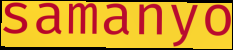
samanyo